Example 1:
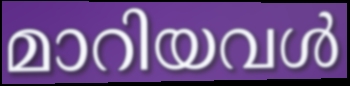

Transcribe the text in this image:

മാറിയവൾ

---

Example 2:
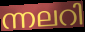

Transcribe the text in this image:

ന്നലറി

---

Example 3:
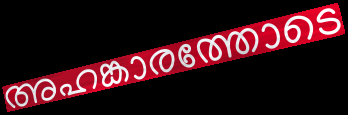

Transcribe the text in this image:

അഹങ്കാരത്തോടെ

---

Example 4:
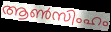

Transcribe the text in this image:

ആൺസിംഹം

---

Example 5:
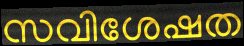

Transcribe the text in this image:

സവിശേഷത